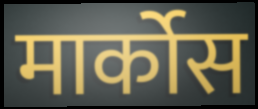
मार्कोस